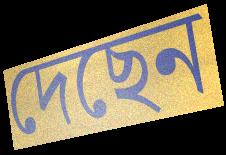
দেছেন